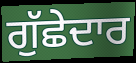
ਗੁੱਛੇਦਾਰ